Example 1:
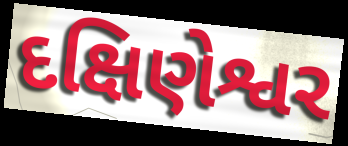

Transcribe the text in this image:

દક્ષિણેશ્વર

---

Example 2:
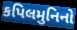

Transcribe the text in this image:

કપિલમુનિનો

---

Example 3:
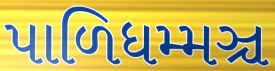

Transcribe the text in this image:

પાળિધમ્મઞ્ચ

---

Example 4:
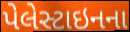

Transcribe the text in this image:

પેલેસ્ટાઇનના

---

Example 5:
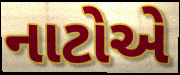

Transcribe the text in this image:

નાટોએ